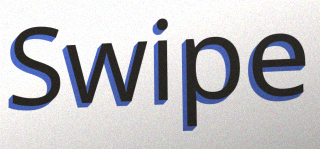
Swipe